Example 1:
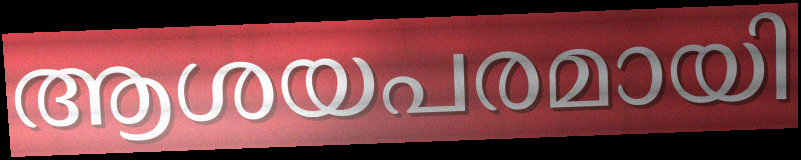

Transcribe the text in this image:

ആശയപരമായി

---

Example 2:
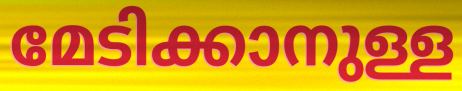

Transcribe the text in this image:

മേടിക്കാനുള്ള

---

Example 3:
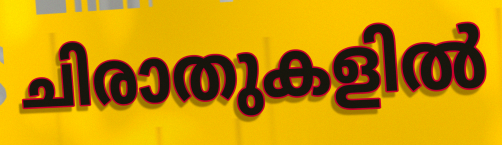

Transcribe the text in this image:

ചിരാതുകളിൽ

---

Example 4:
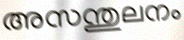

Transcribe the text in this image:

അസന്തുലനം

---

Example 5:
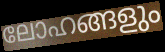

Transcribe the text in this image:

ലോഹങ്ങളും